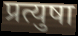
प्रत्युषा